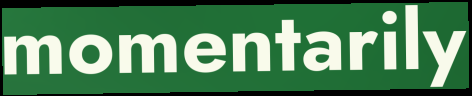
momentarily